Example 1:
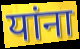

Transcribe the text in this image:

यांना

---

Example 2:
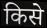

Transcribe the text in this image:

किसे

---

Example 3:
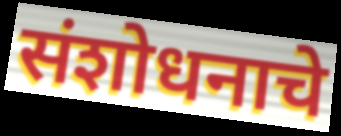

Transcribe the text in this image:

संशोधनाचे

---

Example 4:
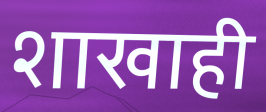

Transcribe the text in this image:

शाखाही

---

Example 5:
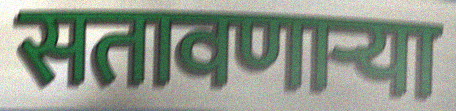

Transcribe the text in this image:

सतावणार्‍या